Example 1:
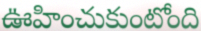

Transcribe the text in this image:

ఊహించుకుంటోంది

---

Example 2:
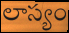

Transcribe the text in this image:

లాస్యం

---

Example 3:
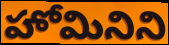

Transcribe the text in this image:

హోమినిని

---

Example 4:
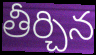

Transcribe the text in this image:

తీర్చిన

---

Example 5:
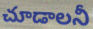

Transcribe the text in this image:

చూడాలనీ